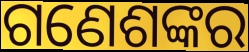
ଗଣେଶଙ୍କର